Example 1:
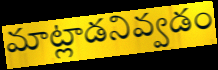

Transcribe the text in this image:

మాట్లాడనివ్వడం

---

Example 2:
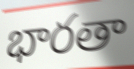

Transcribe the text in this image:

భారతా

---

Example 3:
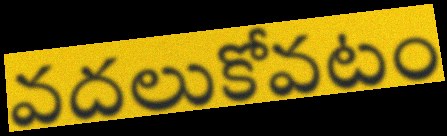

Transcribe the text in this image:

వదలుకోవటం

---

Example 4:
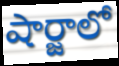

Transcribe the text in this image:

షార్జాలో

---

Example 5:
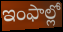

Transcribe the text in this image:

ఇంఫాల్లో